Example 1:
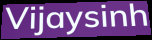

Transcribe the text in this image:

Vijaysinh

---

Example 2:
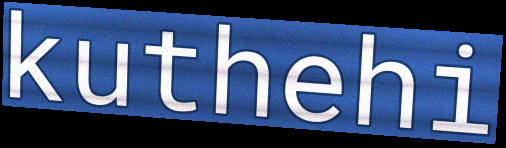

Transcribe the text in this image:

kuthehi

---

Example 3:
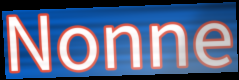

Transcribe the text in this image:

Nonne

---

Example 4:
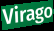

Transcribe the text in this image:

Virago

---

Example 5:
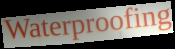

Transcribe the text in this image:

Waterproofing